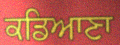
ਕਡਿਆਣਾ